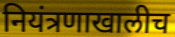
नियंत्रणाखालीच